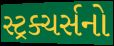
સ્ટ્રક્ચર્સનો